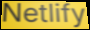
Netlify